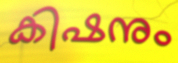
കിഷനും